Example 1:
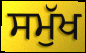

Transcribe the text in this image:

ਸਮੁੱਖ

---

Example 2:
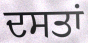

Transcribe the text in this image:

ਦਸਤਾਂ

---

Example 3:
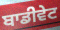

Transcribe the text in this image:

ਬਾਡੀਵੇਟ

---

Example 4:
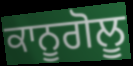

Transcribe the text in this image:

ਕਾਨੂਗੋਲੂ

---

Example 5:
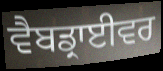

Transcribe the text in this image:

ਵੈਬਡ੍ਰਾਈਵਰ